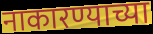
नाकारण्याच्या